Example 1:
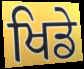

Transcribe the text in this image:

ਖਿਡੇ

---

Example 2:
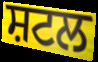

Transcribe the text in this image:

ਸ਼ਟਲ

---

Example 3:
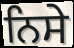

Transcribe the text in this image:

ਨਿਸੇ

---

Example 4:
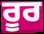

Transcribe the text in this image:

ਰੂਰ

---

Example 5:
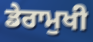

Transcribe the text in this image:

ਡੇਰਾਮੁਖੀ